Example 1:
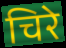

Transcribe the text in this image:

चिरे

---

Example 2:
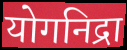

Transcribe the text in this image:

योगनिद्रा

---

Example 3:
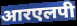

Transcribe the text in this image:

आरएलपी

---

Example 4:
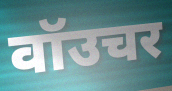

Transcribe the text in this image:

वॉउचर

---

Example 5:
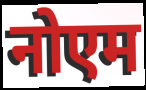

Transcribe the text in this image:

नोएम